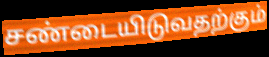
சண்டையிடுவதற்கும்